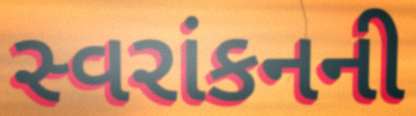
સ્વરાંકનની